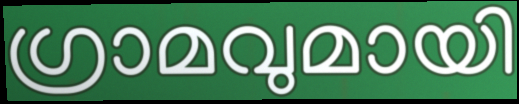
ഗ്രാമവുമായി